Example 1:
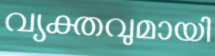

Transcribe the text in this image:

വ്യക്തവുമായി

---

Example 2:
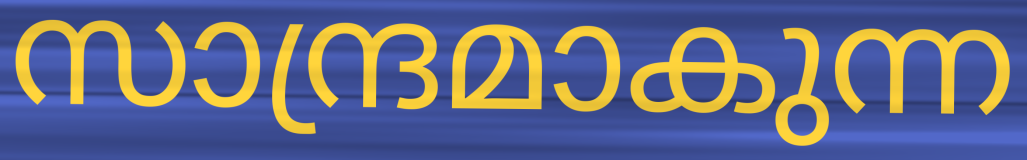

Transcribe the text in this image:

സാന്ദ്രമാകുന്ന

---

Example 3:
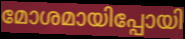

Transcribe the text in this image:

മോശമായിപ്പോയി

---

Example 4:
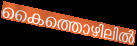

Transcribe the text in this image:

കൈത്തൊഴിലിൽ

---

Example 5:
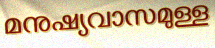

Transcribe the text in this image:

മനുഷ്യവാസമുള്ള